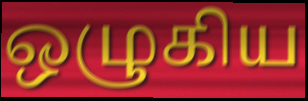
ஒழுகிய